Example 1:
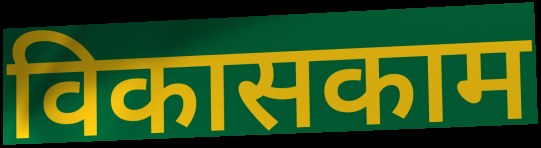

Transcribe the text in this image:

विकासकाम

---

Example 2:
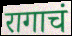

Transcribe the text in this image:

रागाचं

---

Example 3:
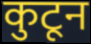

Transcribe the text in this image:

कुटून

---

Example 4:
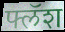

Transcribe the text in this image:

फ्लॅश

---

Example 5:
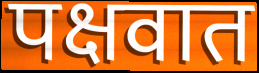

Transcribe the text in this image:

पक्षवात